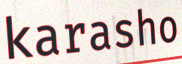
karasho